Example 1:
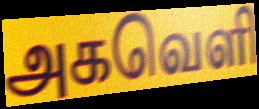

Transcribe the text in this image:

அகவெளி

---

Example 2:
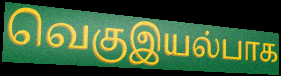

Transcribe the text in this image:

வெகுஇயல்பாக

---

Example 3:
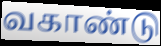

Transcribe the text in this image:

வகாண்டு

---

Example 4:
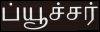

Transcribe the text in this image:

ப்யூச்சர்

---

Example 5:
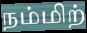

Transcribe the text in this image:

நம்மிற்